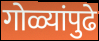
गोळ्यांपुढे